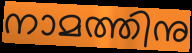
നാമത്തിനു